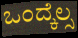
ಒಂದ್ಕೆಲ್ಸ